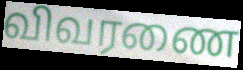
விவரணை